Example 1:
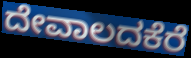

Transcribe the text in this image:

ದೇವಾಲದಕೆರೆ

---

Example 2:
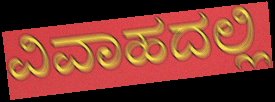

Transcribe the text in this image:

ವಿವಾಹದಲ್ಲಿ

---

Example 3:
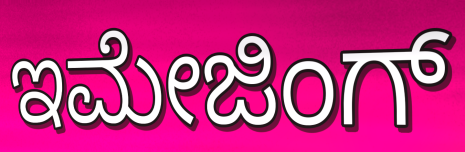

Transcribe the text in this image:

ಇಮೇಜಿಂಗ್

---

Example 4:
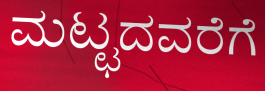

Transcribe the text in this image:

ಮಟ್ಟದವರೆಗೆ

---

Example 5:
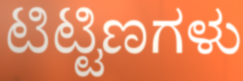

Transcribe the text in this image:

ಟಿಟ್ಟಿಣಗಳು